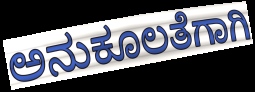
ಅನುಕೂಲತೆಗಾಗಿ